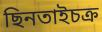
ছিনতাইচক্র